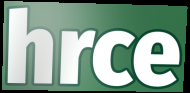
hrce